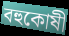
বহুকোষী